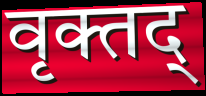
वृक्तद्